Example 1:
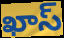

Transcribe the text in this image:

ఖాస్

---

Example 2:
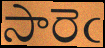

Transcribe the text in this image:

సారెఁ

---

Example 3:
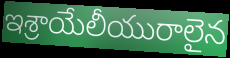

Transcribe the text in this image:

ఇశ్రాయేలీయురాలైన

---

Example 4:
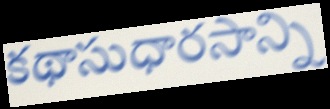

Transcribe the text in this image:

కథాసుధారసాన్ని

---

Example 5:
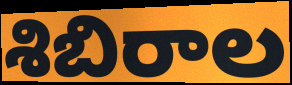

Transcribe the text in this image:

శిబిరాల